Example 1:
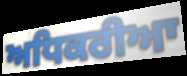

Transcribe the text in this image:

ਅਧਿਕਰੀਆ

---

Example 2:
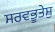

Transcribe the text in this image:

ਸਰਵਭੂਤੇਸ਼ੁ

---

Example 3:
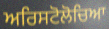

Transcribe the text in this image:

ਅਰਿਸਟੋਲੋਚਿਆ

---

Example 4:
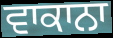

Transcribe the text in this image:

ਵਾਕਾਨਾ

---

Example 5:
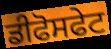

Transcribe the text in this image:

ਡੀਫੋਸਫੇਟ